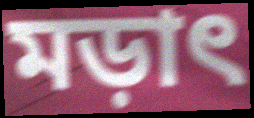
মড়াৎ